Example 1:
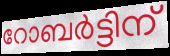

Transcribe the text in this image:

റോബർട്ടിന്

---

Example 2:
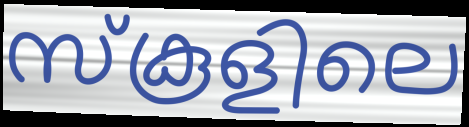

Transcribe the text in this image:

സ്കൂളിലെ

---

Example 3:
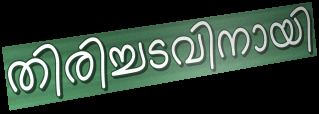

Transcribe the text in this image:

തിരിച്ചടവിനായി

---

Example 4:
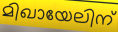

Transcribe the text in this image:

മിഖായേലിന്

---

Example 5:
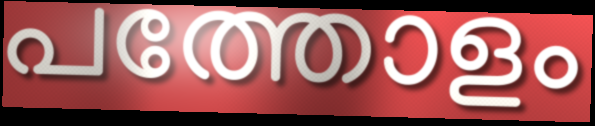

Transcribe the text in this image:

പത്തോളം